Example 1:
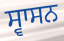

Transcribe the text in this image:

ਸ੍ਵਾਸਨ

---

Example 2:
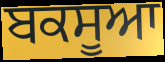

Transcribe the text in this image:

ਬਕਸੂਆ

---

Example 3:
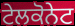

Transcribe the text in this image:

ਟੇਲਕੋਨੇਟ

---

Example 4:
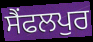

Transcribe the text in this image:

ਸੈਂਫਲਪੁਰ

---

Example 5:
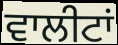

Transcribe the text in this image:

ਵਾਲੀਟਾਂ